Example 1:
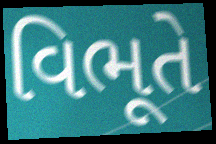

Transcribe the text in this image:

વિભૂતે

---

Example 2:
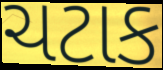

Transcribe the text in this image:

ચટાક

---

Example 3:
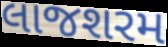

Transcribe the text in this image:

લાજશરમ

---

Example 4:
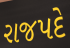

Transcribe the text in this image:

રાજપદે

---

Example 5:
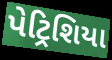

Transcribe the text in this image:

પેટ્રિશિયા